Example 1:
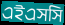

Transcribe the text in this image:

এইএসসি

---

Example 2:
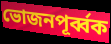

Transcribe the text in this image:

ভোজনপূর্ব্বক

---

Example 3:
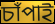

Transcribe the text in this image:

চাঁপাই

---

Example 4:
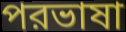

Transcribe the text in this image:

পরভাষা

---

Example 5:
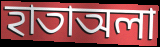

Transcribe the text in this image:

হাতাঅলা